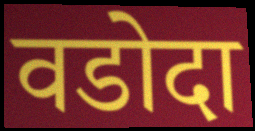
वडोदा